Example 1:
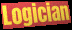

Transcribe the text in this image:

Logician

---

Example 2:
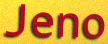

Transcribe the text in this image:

Jeno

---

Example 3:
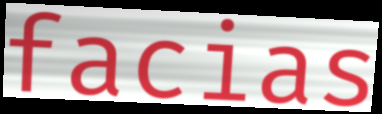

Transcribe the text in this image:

facias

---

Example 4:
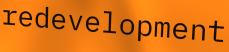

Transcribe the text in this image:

redevelopment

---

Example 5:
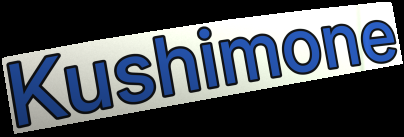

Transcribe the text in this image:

Kushimone